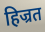
हिज्रत